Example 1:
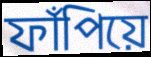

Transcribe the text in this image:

ফাঁপিয়ে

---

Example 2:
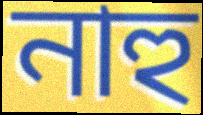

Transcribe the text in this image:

নাহু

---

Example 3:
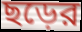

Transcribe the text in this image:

ছড়ের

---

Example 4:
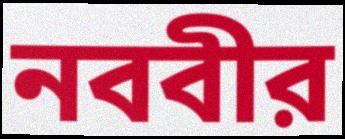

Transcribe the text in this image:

নববীর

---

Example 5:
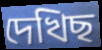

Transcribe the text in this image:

দেখিছ